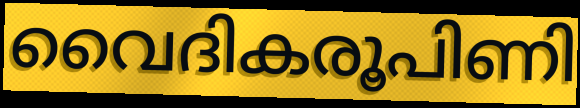
വൈദികരൂപിണി